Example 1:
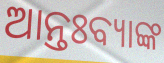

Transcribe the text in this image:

ଆନ୍ତଃବ୍ୟାଙ୍କ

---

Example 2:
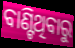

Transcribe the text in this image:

ବାଣ୍ଟିଥିବାରୁ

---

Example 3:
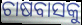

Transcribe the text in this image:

ଚାଷବାସକୁ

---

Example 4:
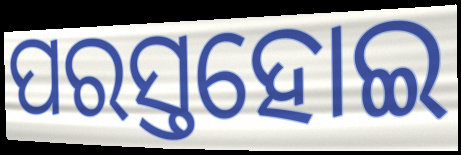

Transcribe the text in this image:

ପରସ୍ତହୋଇ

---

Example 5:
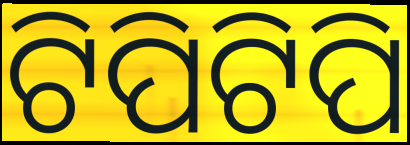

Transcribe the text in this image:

ଟିପିଟିପି